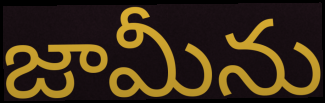
జామీను